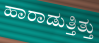
ಹಾರಾಡುತ್ತಿತ್ತು